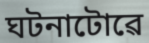
ঘটনাটোৱে